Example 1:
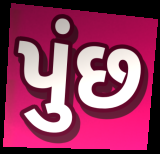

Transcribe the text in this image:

પુંછ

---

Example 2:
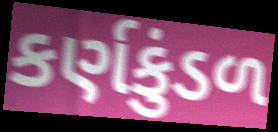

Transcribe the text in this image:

કર્ણકુંડળ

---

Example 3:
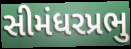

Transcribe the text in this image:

સીમંધરપ્રભુ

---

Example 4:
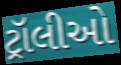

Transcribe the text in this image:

ટ્રૉલીઓ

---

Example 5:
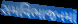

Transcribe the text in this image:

સમવિભાજનમાં